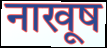
नाखूष